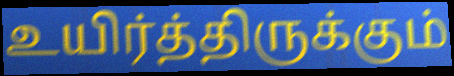
உயிர்த்திருக்கும்